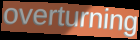
overturning